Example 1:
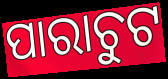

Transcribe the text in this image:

ପାରାଚୁଟ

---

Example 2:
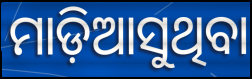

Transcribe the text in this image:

ମାଡ଼ିଆସୁଥିବା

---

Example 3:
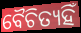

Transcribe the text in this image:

ବୈଚିତ୍ୟହିଁ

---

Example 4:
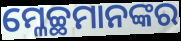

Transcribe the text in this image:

ମ୍ଳେଚ୍ଛମାନଙ୍କର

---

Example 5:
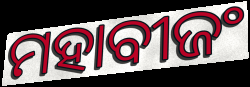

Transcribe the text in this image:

ମହାବୀଜଂ